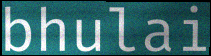
bhulai